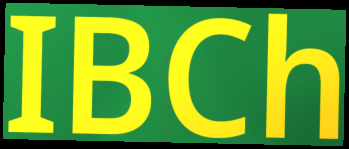
IBCh